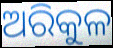
ଅରିକୁଳ